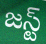
జస్ట్